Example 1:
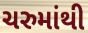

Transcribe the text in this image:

ચરુમાંથી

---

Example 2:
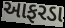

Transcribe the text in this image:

આફરડા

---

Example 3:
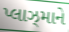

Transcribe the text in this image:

પ્લાઝ્માને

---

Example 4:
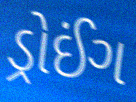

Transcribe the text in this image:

ડ્રોઈંગ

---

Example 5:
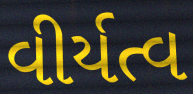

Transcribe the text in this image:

વીર્યત્વ